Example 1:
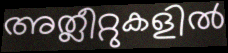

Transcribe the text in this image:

അത്ലീറ്റുകളിൽ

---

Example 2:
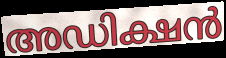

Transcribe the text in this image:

അഡിക്ഷൻ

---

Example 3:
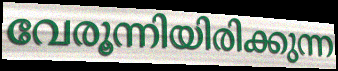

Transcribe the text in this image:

വേരൂന്നിയിരിക്കുന്ന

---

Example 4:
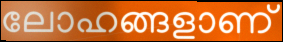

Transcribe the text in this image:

ലോഹങ്ങളാണ്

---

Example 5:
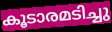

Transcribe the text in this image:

കൂടാരമടിച്ചു